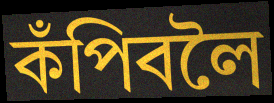
কঁপিবলৈ